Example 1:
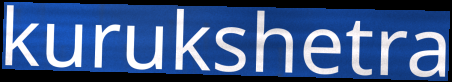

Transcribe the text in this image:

kurukshetra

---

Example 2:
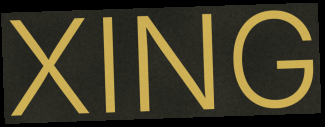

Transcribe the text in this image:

XING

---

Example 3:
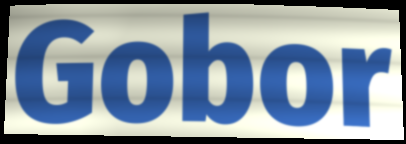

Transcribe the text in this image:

Gobor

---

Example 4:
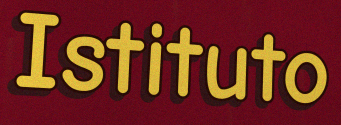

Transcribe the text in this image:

Istituto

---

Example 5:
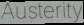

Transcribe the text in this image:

Austerity